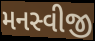
મનસ્વીજી